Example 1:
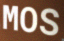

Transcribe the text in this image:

MOS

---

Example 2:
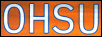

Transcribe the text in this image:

OHSU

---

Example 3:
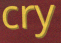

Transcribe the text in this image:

cry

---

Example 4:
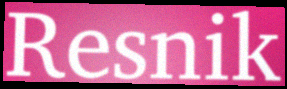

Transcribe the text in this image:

Resnik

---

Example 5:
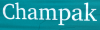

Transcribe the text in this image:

Champak